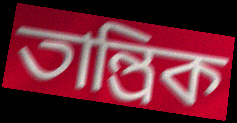
তান্ত্রিক